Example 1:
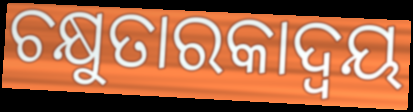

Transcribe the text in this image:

ଚକ୍ଷୁତାରକାଦ୍ଵୟ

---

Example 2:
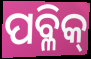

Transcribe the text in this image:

ପବ୍ଳିକ୍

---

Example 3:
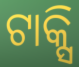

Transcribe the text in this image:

ଟାକ୍ସି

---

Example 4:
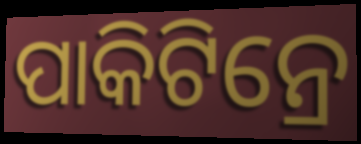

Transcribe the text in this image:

ପାକିଟିନ୍ରେ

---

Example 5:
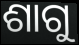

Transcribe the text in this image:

ଶାଗୁ